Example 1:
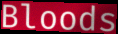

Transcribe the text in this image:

Bloods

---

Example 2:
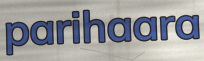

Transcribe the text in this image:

parihaara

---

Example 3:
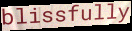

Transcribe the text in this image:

blissfully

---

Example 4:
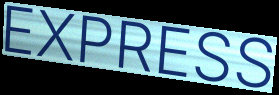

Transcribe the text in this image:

EXPRESS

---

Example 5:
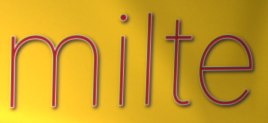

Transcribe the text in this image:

milte